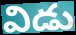
విడు